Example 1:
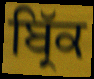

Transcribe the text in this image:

ਬ੍ਰਿੱਕ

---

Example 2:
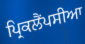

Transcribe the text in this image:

ਪ੍ਰਿਕਲੈਂਪਸੀਆ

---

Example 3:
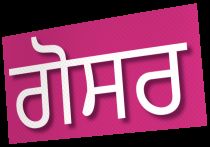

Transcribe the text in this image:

ਗੋਸਰ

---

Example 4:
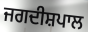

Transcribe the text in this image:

ਜਗਦੀਸ਼ਪਾਲ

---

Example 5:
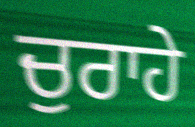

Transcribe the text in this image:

ਚੁਰਾਹੇ